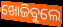
ଖୋଜିବୁଲେ